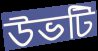
উভটি